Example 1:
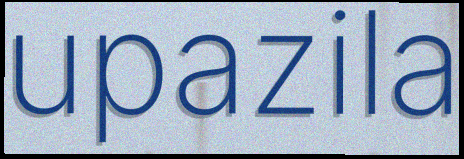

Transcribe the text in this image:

upazila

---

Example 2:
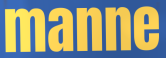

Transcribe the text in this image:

manne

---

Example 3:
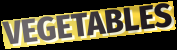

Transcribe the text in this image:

VEGETABLES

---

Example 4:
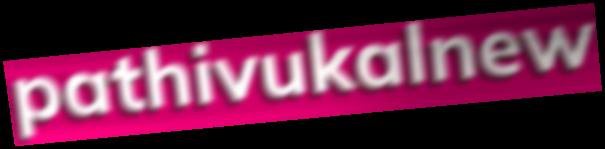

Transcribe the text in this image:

pathivukalnew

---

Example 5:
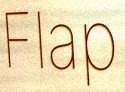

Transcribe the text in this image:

Flap